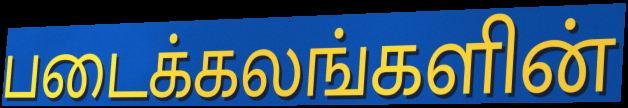
படைக்கலங்களின்